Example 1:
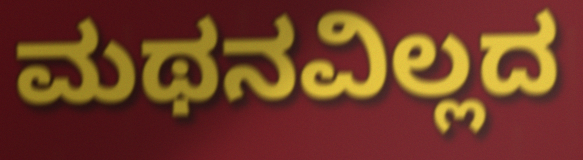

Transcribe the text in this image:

ಮಥನವಿಲ್ಲದ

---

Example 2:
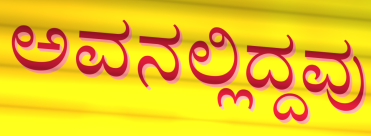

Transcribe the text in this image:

ಅವನಲ್ಲಿದ್ದವು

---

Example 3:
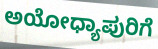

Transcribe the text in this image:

ಅಯೋಧ್ಯಾಪುರಿಗೆ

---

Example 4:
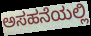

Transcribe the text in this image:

ಅಸಹನೆಯಲ್ಲಿ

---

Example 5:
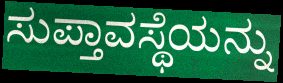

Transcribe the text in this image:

ಸುಪ್ತಾವಸ್ಥೆಯನ್ನು